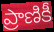
ప్రాణికీ